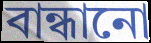
বান্ধানো